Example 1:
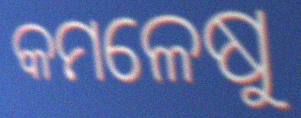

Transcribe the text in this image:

କମଳେଷୁ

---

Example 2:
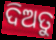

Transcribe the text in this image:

ଦିଅତୁ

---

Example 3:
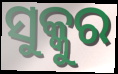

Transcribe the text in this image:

ସୁକ୍କୁର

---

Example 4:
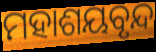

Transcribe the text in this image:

ମହାଶୟବୃନ୍ଦ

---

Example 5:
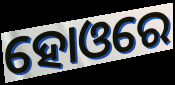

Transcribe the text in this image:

ହୋଓରେ